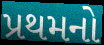
પ્રથમનો